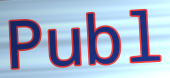
Publ